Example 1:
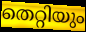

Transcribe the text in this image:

തെറ്റിയും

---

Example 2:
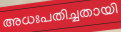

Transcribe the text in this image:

അധഃപതിച്ചതായി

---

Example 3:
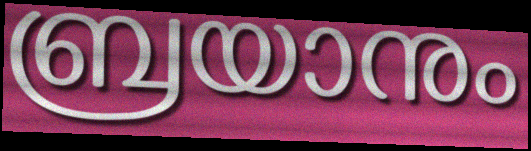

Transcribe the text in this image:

ബ്രയാനും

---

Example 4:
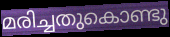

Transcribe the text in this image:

മരിച്ചതുകൊണ്ടു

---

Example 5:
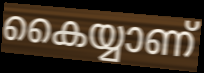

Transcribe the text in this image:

കൈയ്യാണ്